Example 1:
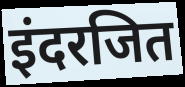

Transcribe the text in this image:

इंदरजित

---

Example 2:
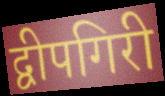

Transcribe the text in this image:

द्वीपगिरी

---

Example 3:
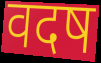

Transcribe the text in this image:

वदष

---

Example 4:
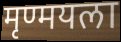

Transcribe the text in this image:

मृण्मयला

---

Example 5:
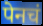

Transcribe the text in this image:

पेनचं